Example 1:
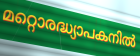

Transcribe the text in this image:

മറ്റൊരദ്ധ്യാപകനിൽ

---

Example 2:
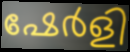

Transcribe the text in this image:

ഷേർളി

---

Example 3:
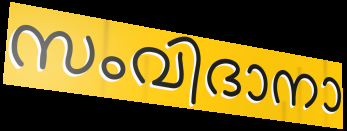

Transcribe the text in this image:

സംവിദാനാ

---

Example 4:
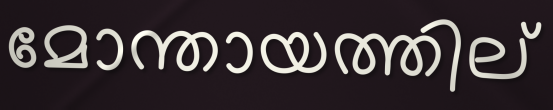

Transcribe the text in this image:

മോന്തായത്തില്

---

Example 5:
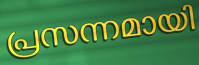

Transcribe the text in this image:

പ്രസന്നമായി